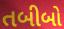
તબીબો